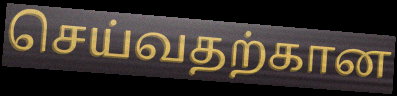
செய்வதற்கான